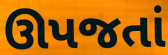
ઊપજતાં